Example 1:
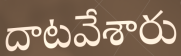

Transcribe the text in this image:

దాటవేశారు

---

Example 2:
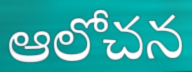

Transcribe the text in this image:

ఆలోచన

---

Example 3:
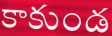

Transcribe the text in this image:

కాకుండ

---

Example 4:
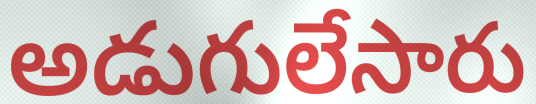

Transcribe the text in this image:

అడుగులేసారు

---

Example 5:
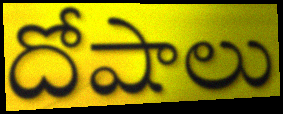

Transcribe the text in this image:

దోషాలు